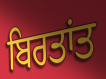
ਬਿਰਤਾਂਤ